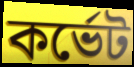
কর্ভেট